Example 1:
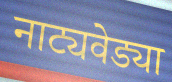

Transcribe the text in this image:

नाट्यवेड्या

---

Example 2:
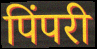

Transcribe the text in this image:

पिंपरी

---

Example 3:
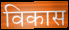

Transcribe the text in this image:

विकास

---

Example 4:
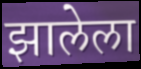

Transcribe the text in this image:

झालेला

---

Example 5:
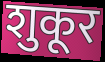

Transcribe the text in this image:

शुकूर